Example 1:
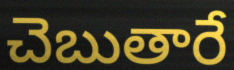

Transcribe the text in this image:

చెబుతారే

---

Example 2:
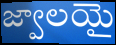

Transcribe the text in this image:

జ్వాలయై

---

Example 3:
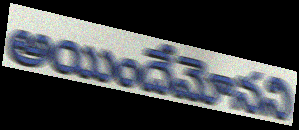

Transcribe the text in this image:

అయిందేమోనని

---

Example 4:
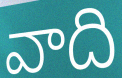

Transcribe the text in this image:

వాది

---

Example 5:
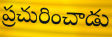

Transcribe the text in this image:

ప్రచురించాడు